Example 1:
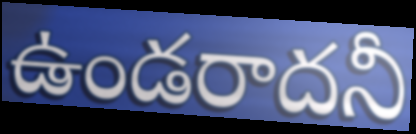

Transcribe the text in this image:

ఉండరాదనీ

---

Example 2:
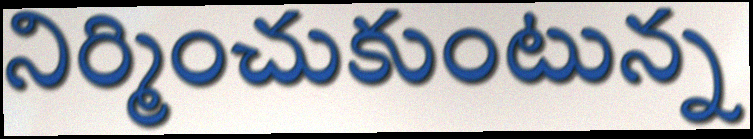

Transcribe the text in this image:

నిర్మించుకుంటున్న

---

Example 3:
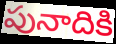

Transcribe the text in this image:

పునాదికి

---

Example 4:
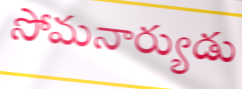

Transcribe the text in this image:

సోమనార్యుడు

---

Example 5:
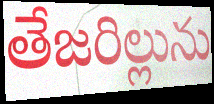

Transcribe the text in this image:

తేజరిల్లును